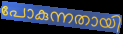
പോകുന്നതായി